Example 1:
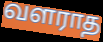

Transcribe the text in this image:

வளராத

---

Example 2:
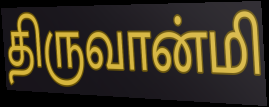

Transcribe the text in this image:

திருவான்மி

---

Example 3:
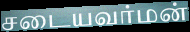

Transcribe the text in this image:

சடையவர்மன்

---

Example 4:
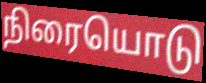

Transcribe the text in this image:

நிரையொடு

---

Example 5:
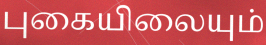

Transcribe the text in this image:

புகையிலையும்